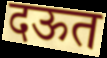
दऊत